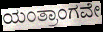
ಯಂತ್ರಾಂಗವೇ